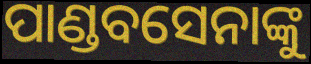
ପାଣ୍ଡବସେନାଙ୍କୁ